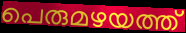
പെരുമഴയത്ത്